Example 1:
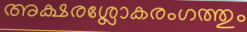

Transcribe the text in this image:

അക്ഷരശ്ലോകരംഗത്തും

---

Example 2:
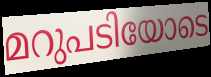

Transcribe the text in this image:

മറുപടിയോടെ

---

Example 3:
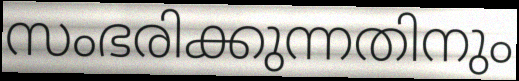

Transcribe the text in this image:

സംഭരിക്കുന്നതിനും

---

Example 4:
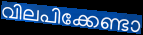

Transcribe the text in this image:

വിലപിക്കേണ്ടാ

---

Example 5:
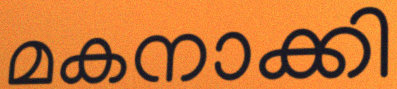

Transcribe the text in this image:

മകനാക്കി